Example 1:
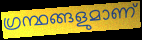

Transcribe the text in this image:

ഗ്രന്ഥങ്ങളുമാണ്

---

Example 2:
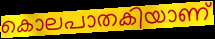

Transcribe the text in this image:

കൊലപാതകിയാണ്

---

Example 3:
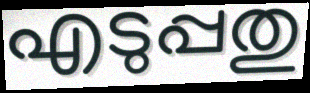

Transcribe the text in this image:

എടുപ്പതു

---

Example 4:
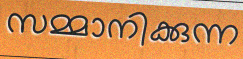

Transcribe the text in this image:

സമ്മാനിക്കുന്ന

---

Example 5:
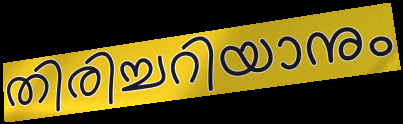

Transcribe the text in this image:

തിരിച്ചറിയാനും